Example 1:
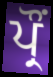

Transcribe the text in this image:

ਪ੍ਰੌਂ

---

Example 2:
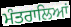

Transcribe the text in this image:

ਮੰਤਰਾਲਿਆਂ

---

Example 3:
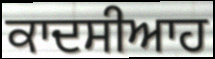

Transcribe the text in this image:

ਕਾਦਸੀਆਹ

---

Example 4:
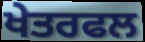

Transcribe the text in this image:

ਖੇਤਰਫਲ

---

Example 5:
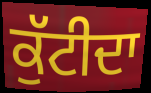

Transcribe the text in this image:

ਕੁੱਟੀਦਾ